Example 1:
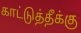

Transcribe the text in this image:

காட்டுத்தீக்கு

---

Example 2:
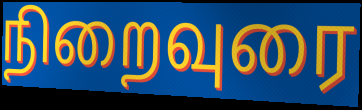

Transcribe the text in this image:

நிறைவுரை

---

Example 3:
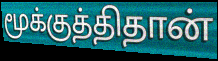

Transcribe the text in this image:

மூக்குத்திதான்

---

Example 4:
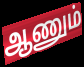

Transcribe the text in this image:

ஆணும்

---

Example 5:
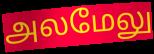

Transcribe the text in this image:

அலமேலு